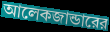
আলেকজান্ডারের